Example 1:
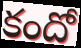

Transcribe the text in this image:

కందో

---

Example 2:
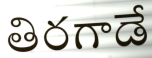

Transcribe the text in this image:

తిరగాడే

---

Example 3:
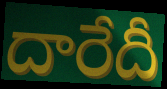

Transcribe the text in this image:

దారేదీ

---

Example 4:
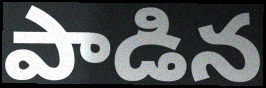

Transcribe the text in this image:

పాడిన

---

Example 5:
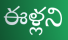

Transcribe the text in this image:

ఈళ్లని